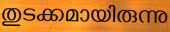
തുടക്കമായിരുന്നു